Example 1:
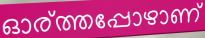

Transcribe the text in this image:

ഓര്ത്തപ്പോഴാണ്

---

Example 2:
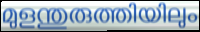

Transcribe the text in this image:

മുളന്തുരുത്തിയിലും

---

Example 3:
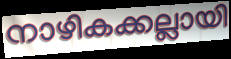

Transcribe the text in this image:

നാഴികക്കല്ലായി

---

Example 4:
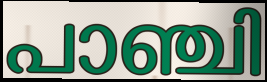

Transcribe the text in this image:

പാഞ്ചി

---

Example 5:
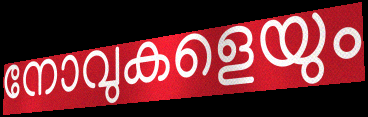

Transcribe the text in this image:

നോവുകളെയും